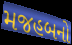
મજહબનો